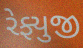
રેફ્યુજી